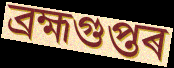
ব্ৰহ্মগুপ্তৰ